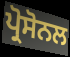
ਪ੍ਰੋਸੋਨਲ